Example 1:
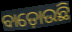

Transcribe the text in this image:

ବାଡ଼ୋଉଛି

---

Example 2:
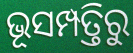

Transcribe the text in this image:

ଭୂସମ୍ପତ୍ତିରୁ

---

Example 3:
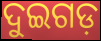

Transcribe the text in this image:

ଦୁଇଗଡ଼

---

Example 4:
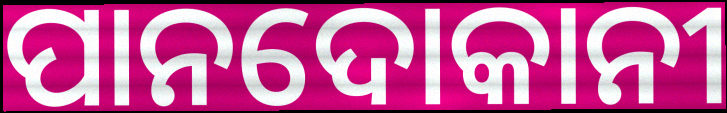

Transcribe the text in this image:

ପାନଦୋକାନୀ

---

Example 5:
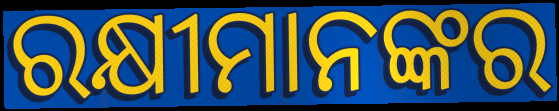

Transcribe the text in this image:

ରକ୍ଷୀମାନଙ୍କର